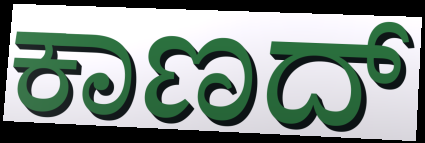
ಕಾಣದ್